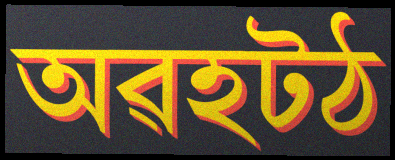
অৱহটঠ